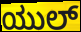
ಯುಲ್